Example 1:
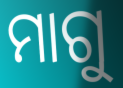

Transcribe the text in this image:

ମାଗୁ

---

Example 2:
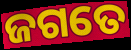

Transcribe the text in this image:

ଜଗତେ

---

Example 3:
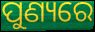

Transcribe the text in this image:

ପୁଣ୍ୟରେ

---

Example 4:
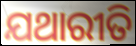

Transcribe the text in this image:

ଯଥାରୀତି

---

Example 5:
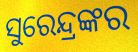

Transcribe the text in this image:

ସୁରେନ୍ଦ୍ରଙ୍କର